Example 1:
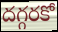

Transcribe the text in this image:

దగ్గరకో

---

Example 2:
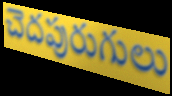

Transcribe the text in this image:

చెదపురుగులు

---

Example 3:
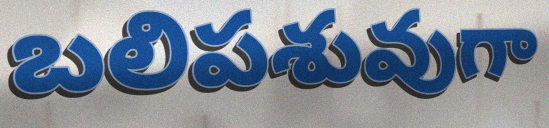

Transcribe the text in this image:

బలిపశువుగా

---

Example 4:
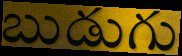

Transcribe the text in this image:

బుడుగు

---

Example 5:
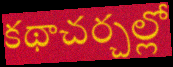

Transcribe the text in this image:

కథాచర్చల్లో